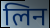
लिन